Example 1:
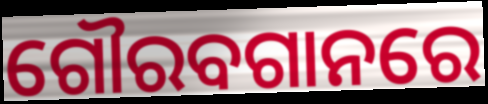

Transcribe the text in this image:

ଗୌରବଗାନରେ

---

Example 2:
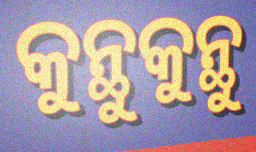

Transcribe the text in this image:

କୁନ୍ଥୁକୁନ୍ଥୁ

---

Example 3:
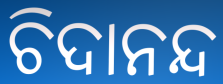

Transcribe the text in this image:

ଚିଦାନନ୍ଦ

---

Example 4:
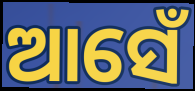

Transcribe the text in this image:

ଆସେଁ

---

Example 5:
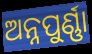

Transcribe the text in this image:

ଅନ୍ନପୁର୍ଣ୍ଣା